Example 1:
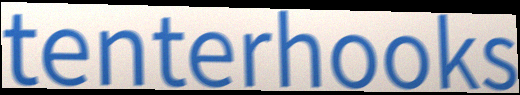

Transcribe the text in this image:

tenterhooks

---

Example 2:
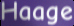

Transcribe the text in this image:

Haage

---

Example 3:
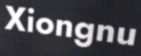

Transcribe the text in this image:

Xiongnu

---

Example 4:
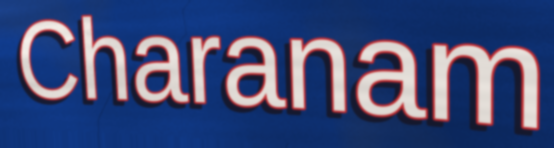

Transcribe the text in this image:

Charanam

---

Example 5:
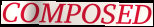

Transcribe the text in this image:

COMPOSED